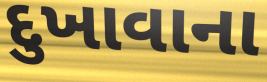
દુખાવાના